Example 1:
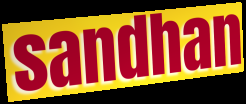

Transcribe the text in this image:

sandhan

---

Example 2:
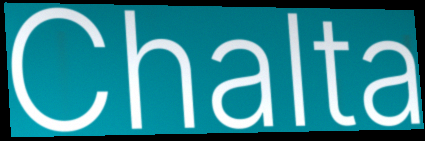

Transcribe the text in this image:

Chalta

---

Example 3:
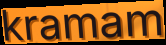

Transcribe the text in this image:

kramam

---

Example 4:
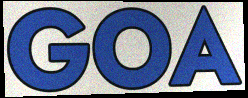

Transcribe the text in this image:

GOA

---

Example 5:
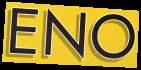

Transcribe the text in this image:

ENO